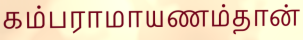
கம்பராமாயணம்தான்